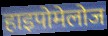
हाइपोमेलोज